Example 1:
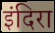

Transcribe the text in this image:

इंदिरा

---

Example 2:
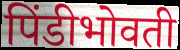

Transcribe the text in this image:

पिंडीभोवती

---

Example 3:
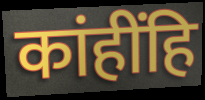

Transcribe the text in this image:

कांहींहि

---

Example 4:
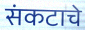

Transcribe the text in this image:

संकटाचे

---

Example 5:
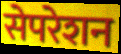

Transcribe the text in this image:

सेपरेशन